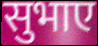
सुभाए